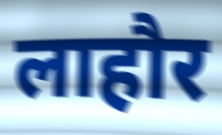
लाहौर